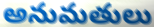
అనుమతులు